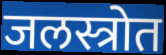
जलस्त्रोत